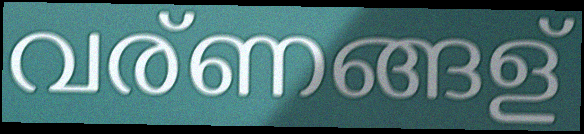
വര്ണങ്ങള്